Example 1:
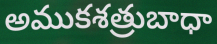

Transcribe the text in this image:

అముకశత్రుబాధా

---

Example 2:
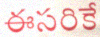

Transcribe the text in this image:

ఈసరికే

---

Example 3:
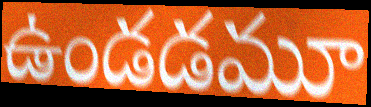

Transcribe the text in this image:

ఉండడమూ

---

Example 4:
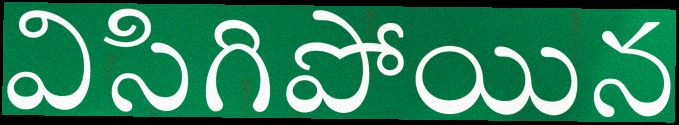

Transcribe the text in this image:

విసిగిపోయిన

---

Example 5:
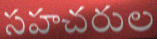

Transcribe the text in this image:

సహచరుల